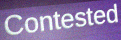
Contested